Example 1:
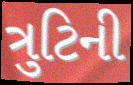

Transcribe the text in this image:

ત્રુટિની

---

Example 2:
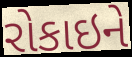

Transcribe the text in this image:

રોકાઇને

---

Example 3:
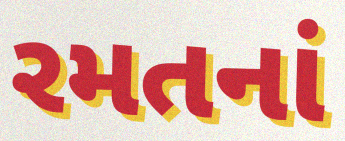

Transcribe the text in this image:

રમતનાં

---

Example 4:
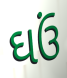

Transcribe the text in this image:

ઘઉં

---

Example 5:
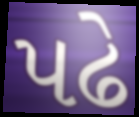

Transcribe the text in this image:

પઢે